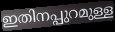
ഇതിനപ്പുറമുള്ള